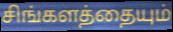
சிங்களத்தையும்